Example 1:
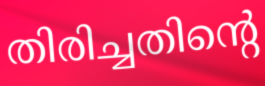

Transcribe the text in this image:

തിരിച്ചതിന്റെ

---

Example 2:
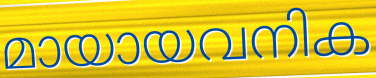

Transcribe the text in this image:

മായായവനിക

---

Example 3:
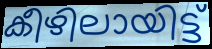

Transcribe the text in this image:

കീഴിലായിട്ട്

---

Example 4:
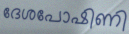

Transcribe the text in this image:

ദേശപോഷിണി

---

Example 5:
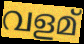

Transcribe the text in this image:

വളമ്